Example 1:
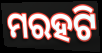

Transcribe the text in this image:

ମରହଟି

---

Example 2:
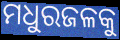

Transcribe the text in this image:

ମଧୁରଜଳକୁ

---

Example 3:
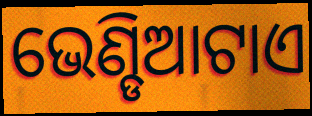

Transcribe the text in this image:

ଭେଣ୍ଡିଆଟାଏ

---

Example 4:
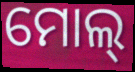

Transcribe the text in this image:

ମୋଲ୍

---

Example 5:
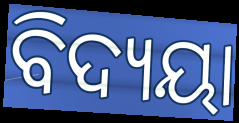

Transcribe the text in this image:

ବିଦ୍ୟୟା